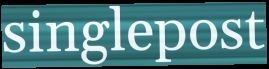
singlepost